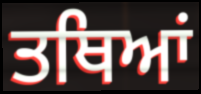
ਤਥਿਆਂ